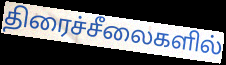
திரைச்சீலைகளில்